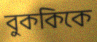
বুককিকে